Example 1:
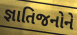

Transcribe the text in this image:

જ્ઞાતિજનોને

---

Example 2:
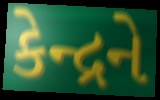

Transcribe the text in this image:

કેન્દ્રને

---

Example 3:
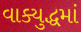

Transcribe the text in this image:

વાક્યુદ્ધમાં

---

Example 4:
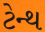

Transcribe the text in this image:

ટેન્થ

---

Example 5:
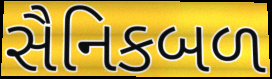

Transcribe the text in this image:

સૈનિકબળ